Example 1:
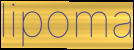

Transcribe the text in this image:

lipoma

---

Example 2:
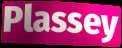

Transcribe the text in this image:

Plassey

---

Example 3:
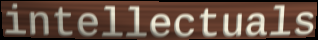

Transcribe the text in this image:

intellectuals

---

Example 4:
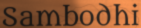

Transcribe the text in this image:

Sambodhi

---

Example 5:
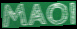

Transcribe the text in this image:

MAOI